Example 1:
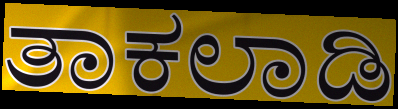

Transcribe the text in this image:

ತಾಕಲಾಡಿ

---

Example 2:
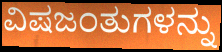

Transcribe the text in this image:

ವಿಷಜಂತುಗಳನ್ನು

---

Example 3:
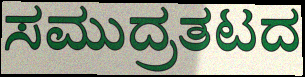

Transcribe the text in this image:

ಸಮುದ್ರತಟದ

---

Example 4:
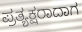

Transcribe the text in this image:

ಪ್ರತ್ಯಕ್ಷರಾದಾಗ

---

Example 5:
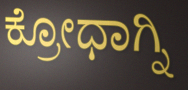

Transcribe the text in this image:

ಕ್ರೋಧಾಗ್ನಿ